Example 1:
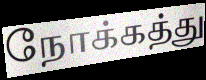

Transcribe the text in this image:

நோக்கத்து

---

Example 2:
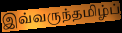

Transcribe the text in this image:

இவ்வருந்தமிழ்ப்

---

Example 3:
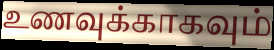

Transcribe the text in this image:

உணவுக்காகவும்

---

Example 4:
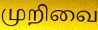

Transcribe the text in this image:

முறிவை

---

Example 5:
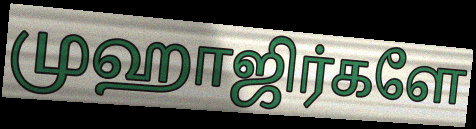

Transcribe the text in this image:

முஹாஜிர்களே